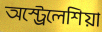
অস্ট্রেলেশিয়া